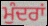
ਮੁੰਦਰਾਂ